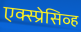
एक्स्प्रेसिव्ह